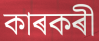
কাৰকৰী